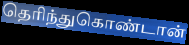
தெரிந்துகொண்டான்